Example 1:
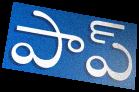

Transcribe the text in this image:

పాప్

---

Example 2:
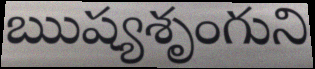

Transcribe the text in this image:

ఋష్యశృంగుని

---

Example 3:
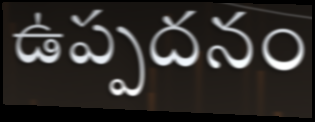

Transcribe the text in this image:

ఉప్పదనం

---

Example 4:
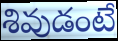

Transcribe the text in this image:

శివుడంటే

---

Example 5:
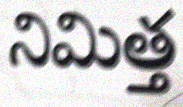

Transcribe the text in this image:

నిమిత్త